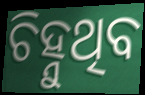
ଚିହ୍ନୁଥିବ